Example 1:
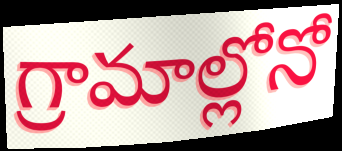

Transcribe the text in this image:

గ్రామాల్లోనో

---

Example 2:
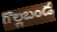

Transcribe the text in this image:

గొల్లబండ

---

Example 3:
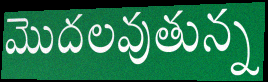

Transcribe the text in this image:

మొదలవుతున్న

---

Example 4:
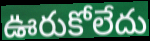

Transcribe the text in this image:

ఊరుకోలేదు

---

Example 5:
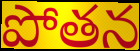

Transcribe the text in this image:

పోతన